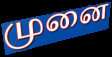
முனை